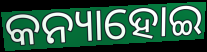
କନ୍ୟାହୋଇ